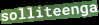
solliteenga